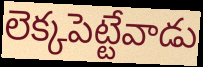
లెక్కపెట్టేవాడు